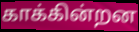
காக்கின்றன